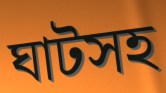
ঘাটসহ